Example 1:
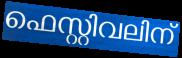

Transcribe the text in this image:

ഫെസ്റ്റിവലിന്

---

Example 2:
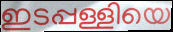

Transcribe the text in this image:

ഇടപ്പള്ളിയെ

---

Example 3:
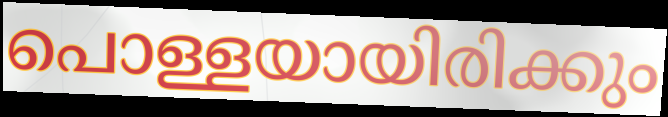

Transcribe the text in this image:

പൊള്ളയായിരിക്കും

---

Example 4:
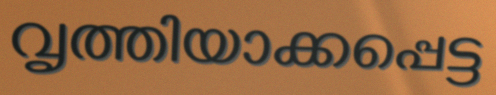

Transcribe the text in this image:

വൃത്തിയാക്കപ്പെട്ട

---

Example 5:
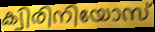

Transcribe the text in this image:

ക്വിരിനിയോസ്